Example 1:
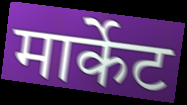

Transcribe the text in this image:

मार्केट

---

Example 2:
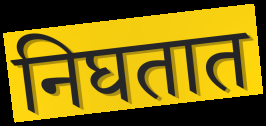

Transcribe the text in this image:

निघतात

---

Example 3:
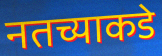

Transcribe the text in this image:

नतच्याकडे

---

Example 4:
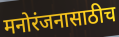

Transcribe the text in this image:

मनोरंजनासाठीच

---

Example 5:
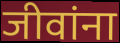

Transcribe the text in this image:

जीवांना